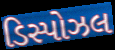
ડિસ્પોઝલ